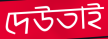
দেউতাই